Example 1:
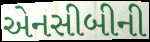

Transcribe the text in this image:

એનસીબીની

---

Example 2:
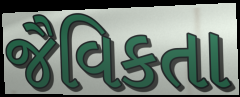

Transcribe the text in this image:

જૈવિકતા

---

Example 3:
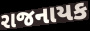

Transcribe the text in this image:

રાજનાયક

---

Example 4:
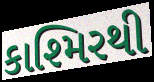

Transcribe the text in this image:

કાશ્મિરથી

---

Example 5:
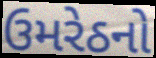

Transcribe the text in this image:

ઉમરેઠનો